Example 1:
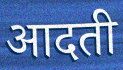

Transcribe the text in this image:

आदती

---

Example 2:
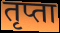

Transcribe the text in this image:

तृप्ता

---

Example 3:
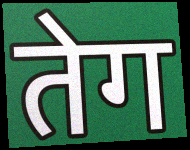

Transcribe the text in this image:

तेग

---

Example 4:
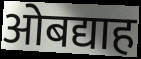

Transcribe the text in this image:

ओबद्याह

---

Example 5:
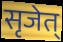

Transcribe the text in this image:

सृजेत्